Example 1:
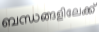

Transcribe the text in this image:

ബന്ധങ്ങളിലേക്ക്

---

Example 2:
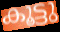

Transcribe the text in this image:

കൂട്ടു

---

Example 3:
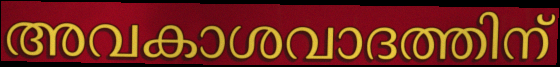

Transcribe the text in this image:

അവകാശവാദത്തിന്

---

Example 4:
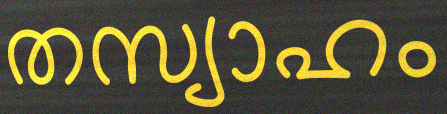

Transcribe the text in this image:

തസ്യാഹം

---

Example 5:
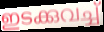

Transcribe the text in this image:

ഇടക്കുവച്ച്